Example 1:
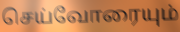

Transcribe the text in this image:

செய்வோரையும்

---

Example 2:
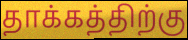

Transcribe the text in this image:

தாக்கத்திற்கு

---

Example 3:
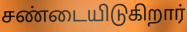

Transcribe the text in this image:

சண்டையிடுகிறார்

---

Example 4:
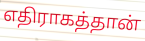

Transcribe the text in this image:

எதிராகத்தான்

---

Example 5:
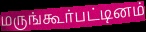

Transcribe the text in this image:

மருங்கூர்பட்டினம்